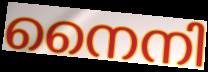
നൈനി